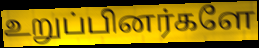
உறுப்பினர்களே